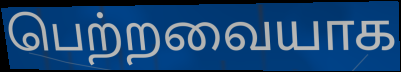
பெற்றவையாக